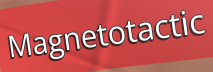
Magnetotactic